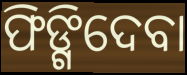
ଫିଙ୍ଗିଦେବା